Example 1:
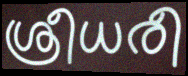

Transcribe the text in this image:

ശ്രീധരീ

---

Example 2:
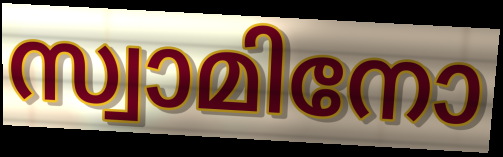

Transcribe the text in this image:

സ്വാമിനോ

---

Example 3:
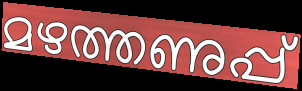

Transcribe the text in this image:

മഴത്തണുപ്പ്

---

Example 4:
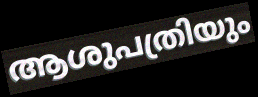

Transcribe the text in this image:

ആശുപത്രിയും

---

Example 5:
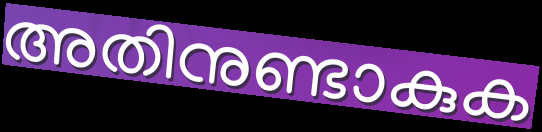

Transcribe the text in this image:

അതിനുണ്ടാകുക